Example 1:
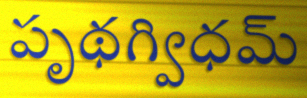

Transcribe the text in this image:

పృథగ్విధమ్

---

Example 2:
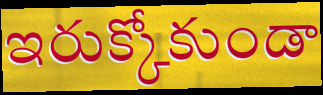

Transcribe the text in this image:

ఇరుక్కోకుండా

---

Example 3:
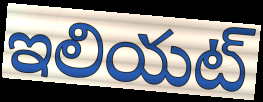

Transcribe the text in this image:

ఇలియట్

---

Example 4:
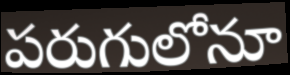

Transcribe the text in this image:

పరుగులోనూ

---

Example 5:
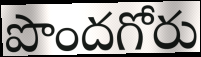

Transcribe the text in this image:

పొందగోరు